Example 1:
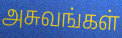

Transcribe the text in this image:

அசுவங்கள்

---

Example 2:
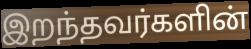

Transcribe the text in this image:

இறந்தவர்களின்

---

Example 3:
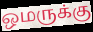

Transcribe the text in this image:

ஒமருக்கு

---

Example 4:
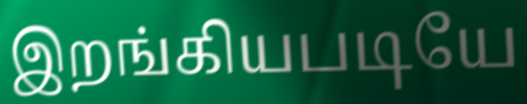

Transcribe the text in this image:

இறங்கியபடியே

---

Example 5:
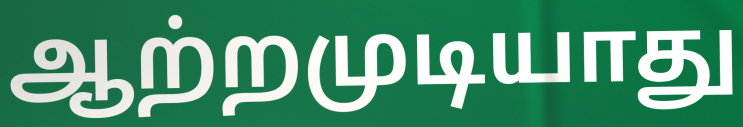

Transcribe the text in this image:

ஆற்றமுடியாது